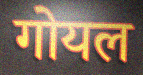
गोयल